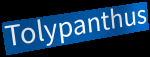
Tolypanthus